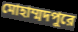
মোহাম্মদপুরে